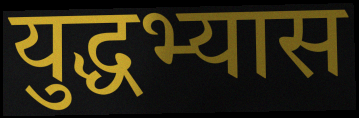
युद्धभ्यास